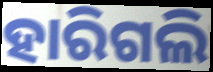
ହାରିଗଲି